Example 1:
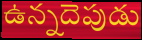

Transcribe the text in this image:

ఉన్నదెపుడు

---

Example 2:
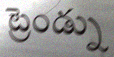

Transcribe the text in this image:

ట్రెండ్ను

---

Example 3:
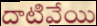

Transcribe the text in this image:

దాటివేయి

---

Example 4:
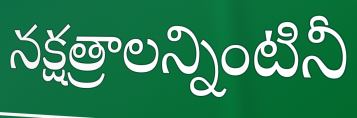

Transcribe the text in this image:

నక్షత్రాలన్నింటినీ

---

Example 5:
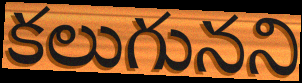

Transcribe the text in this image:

కలుగునని